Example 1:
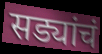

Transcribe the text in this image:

सड्यांचं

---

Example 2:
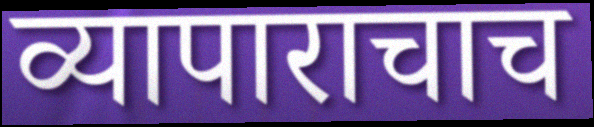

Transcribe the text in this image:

व्यापाराचाच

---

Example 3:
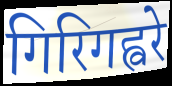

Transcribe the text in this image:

गिरिगह्वरे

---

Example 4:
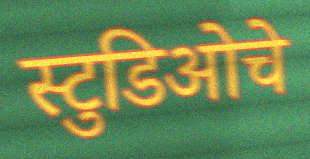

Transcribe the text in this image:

स्टुडिओचे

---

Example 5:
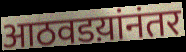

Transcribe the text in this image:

आठवडय़ांनंतर